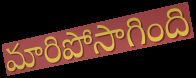
మారిపోసాగింది